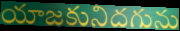
యాజకునిదగును